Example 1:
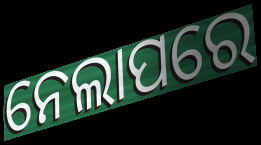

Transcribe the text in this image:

ନେଲାପରେ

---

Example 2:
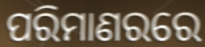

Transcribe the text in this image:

ପରିମାଣରରେ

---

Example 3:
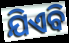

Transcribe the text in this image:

ଯିଏବି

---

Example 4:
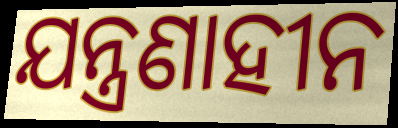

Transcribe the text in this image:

ଯନ୍ତ୍ରଣାହୀନ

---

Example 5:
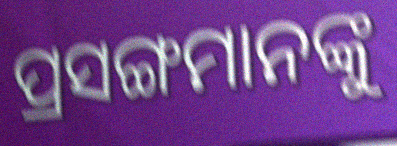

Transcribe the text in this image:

ପ୍ରସଙ୍ଗମାନଙ୍କୁ